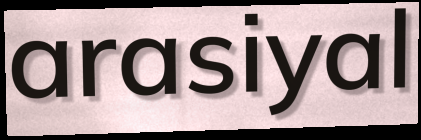
arasiyal